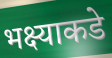
भक्ष्याकडे